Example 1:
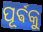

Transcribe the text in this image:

ପୂର୍ଵକୁ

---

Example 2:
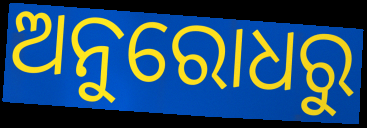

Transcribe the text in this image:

ଅନୁରୋଧରୁ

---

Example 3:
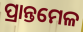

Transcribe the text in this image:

ପ୍ରାନ୍ତମେଳ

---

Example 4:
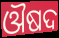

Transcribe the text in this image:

ଔଷଦ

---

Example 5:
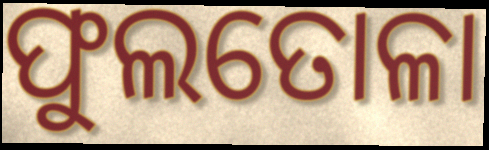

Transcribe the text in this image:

ଫୁଲତୋଳା